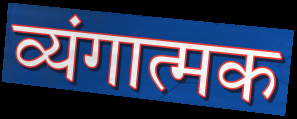
व्यंगात्मक